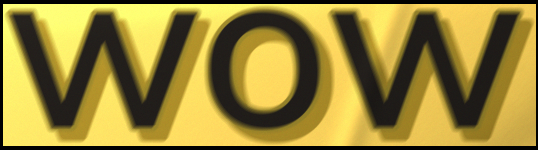
wow